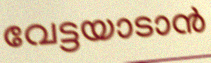
വേട്ടയാടാൻ